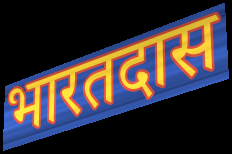
भारतदास